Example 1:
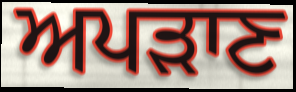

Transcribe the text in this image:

ਅਪੜਾਣ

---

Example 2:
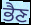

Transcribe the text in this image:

ਭੈਣ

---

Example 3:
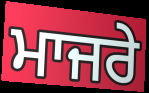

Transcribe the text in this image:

ਮਾਜਰੇ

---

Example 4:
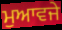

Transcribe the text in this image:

ਮੁਆਵਜੇ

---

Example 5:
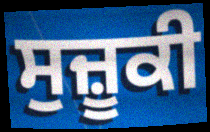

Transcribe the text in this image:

ਸੁਜ਼ੂਕੀ